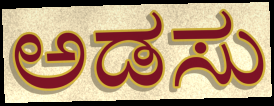
ಅಡಸು